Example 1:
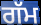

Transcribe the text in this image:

ਗੱਮ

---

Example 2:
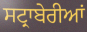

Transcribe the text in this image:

ਸਟ੍ਰਾਬੇਰੀਆਂ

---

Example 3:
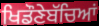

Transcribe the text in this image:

ਖਿਡੌਣੇਬੱਚਿਆਂ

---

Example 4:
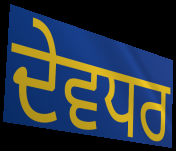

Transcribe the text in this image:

ਦੇਵਧਰ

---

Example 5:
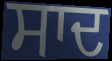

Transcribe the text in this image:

ਸਾਦ